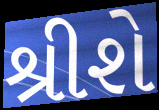
શ્રીશે